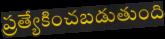
ప్రత్యేకించబడుతుంది